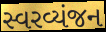
સ્વરવ્યંજન